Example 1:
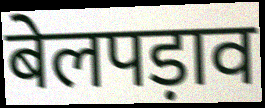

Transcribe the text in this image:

बेलपड़ाव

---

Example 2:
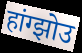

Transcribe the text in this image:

हांग्झोउ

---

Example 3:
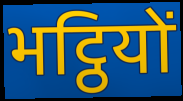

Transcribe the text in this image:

भट्ठियों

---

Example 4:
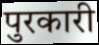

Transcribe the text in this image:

पुरकारी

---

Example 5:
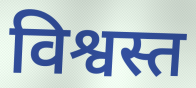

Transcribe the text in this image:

विश्वस्त